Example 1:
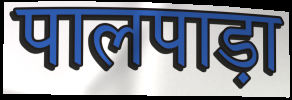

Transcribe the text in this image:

पालपाड़ा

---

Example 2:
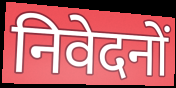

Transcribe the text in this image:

निवेदनों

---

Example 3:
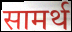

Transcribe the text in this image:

सामर्थ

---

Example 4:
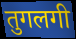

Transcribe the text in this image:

तुगलगी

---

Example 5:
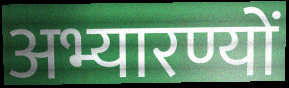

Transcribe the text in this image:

अभ्यारण्यों